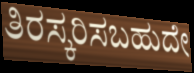
ತಿರಸ್ಕರಿಸಬಹುದೇ